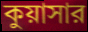
কুয়াসার